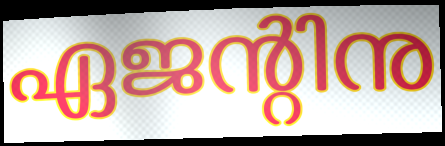
ഏജന്റിനു